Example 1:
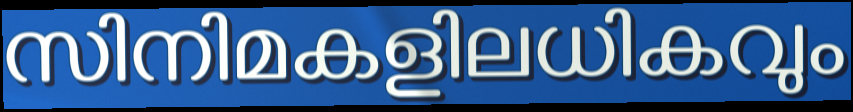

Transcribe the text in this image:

സിനിമകളിലധികവും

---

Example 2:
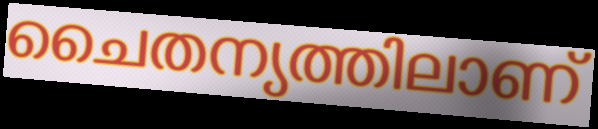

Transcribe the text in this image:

ചൈതന്യത്തിലാണ്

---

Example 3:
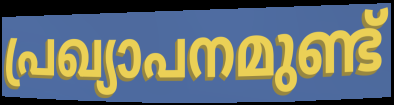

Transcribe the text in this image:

പ്രഖ്യാപനമുണ്ട്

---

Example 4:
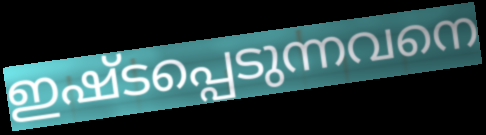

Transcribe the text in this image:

ഇഷ്ടപ്പെടുന്നവനെ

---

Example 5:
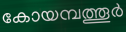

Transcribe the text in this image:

കോയമ്പത്തൂർ